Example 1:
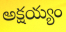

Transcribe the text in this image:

అక్షయ్యం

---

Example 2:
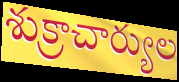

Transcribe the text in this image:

శుక్రాచార్యుల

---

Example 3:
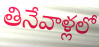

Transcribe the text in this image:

తినేవాళ్లలో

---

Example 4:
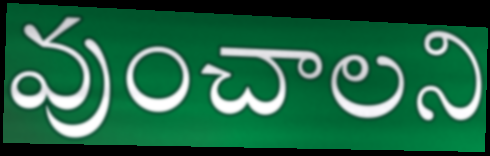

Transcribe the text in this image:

వుంచాలని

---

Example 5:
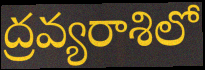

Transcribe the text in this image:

ద్రవ్యరాశిలో